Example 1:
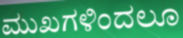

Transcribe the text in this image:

ಮುಖಗಳಿಂದಲೂ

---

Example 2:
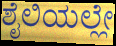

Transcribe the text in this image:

ಶೈಲಿಯಲ್ಲೇ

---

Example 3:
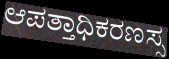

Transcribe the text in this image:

ಆಪತ್ತಾಧಿಕರಣಸ್ಸ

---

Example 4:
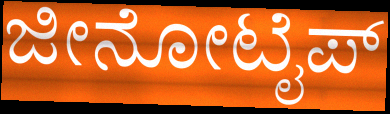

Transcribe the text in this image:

ಜೀನೋಟೈಪ್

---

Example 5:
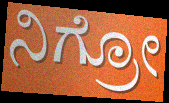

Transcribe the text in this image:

ನಿಗ್ರೋ